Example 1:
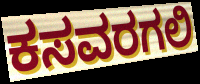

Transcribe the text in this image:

ಕಸವರಗಲಿ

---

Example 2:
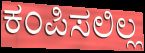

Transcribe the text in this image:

ಕಂಪಿಸಲಿಲ್ಲ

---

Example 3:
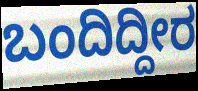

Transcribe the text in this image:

ಬಂದಿದ್ದೀರ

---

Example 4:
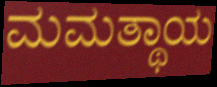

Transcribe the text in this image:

ಮಮತ್ಥಾಯ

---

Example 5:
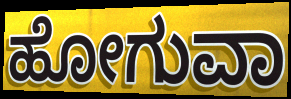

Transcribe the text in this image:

ಹೋಗುವಾ